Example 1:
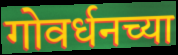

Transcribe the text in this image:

गोवर्धनच्या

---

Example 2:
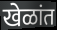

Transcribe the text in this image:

खेळांत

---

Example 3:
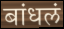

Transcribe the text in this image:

बांधलं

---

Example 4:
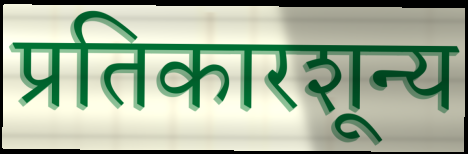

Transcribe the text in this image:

प्रतिकारशून्य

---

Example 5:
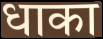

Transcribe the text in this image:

धाका